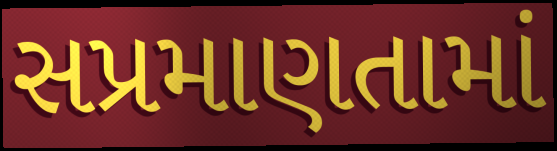
સપ્રમાણતામાં